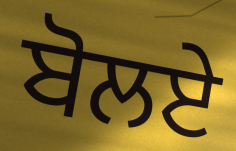
ਬੋਲਏ